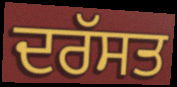
ਦਰੱਸਤ